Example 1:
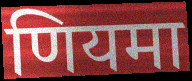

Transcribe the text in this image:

णियमा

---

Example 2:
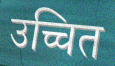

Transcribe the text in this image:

उच्चित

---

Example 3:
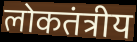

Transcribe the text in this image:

लोकतंत्रीय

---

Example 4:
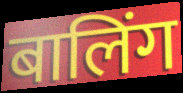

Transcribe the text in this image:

बालिंग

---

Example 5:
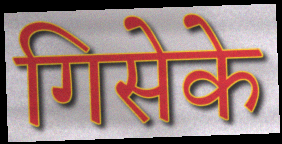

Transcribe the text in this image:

गिसेके